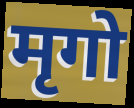
मृगो